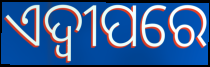
ଏଦ୍ୱୀପରେ